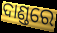
ଦାଣ୍ଡରେ